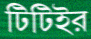
টিটিইর